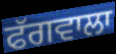
ਫੱਗਵਾਲਾ